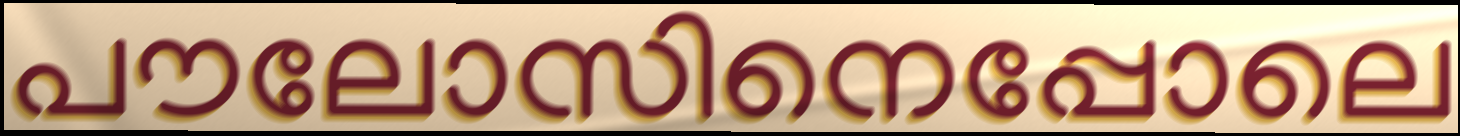
പൗലോസിനെപ്പോലെ